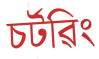
চৰ্টৱিং